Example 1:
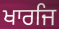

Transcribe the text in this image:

ਖਾਰਜਿ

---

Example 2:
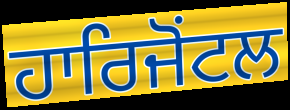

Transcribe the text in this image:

ਹਾਰਿਜੋਂਟਲ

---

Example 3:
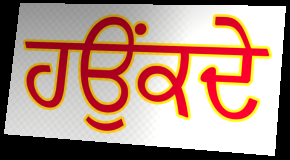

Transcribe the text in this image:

ਹਉਂਕਦੇ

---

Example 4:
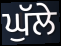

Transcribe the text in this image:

ਘੁੱਲੇ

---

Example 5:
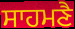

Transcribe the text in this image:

ਸਾਹਮਣੈ